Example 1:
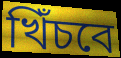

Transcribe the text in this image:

খিঁচবে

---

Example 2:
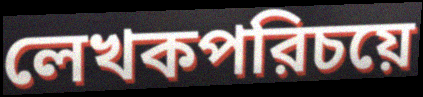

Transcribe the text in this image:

লেখকপরিচয়ে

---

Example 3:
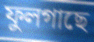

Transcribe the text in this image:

ফুলগাছে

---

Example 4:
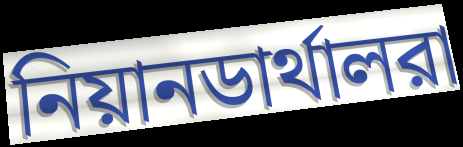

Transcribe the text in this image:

নিয়ানডার্থালরা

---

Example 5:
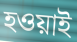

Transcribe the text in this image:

হওয়াই